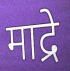
माद्रे